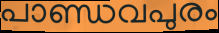
പാണ്ഡവപുരം